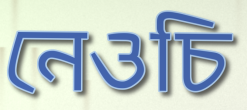
নেওচি